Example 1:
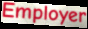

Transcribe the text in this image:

Employer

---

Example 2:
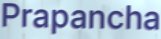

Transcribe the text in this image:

Prapancha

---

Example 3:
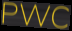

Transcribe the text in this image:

PWC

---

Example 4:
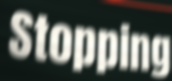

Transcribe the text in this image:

Stopping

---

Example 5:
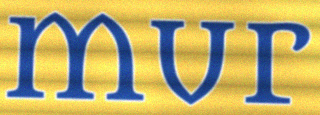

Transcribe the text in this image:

mur